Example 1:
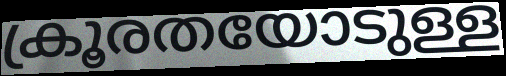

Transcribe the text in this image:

ക്രൂരതയോടുള്ള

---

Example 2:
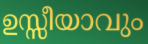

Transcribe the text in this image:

ഉസ്സീയാവും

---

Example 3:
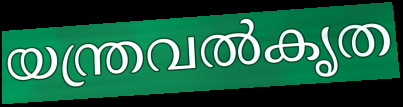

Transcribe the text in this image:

യന്ത്രവൽകൃത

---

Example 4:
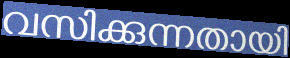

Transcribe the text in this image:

വസിക്കുന്നതായി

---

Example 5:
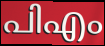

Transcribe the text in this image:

പിഎം